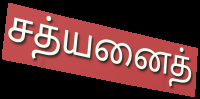
சத்யனைத்